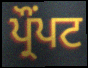
ਪ੍ਰੌੰਪਟ